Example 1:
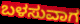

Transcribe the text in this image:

ಬಳಸುವಾಗ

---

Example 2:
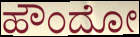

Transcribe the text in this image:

ಹೌಂದೋ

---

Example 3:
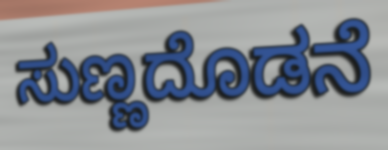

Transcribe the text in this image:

ಸುಣ್ಣದೊಡನೆ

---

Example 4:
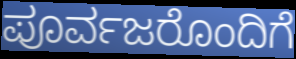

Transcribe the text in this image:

ಪೂರ್ವಜರೊಂದಿಗೆ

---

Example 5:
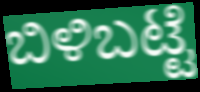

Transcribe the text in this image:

ಬಿಳಿಬಟ್ಟೆ